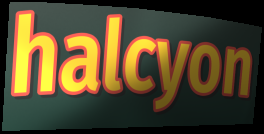
halcyon